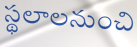
స్థలాలనుంచి